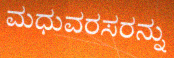
ಮಧುವರಸರನ್ನು